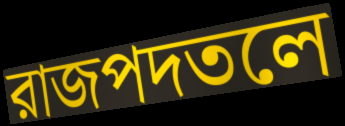
রাজপদতলে